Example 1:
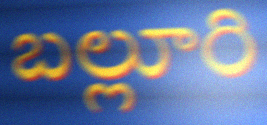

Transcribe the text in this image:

బల్లూరి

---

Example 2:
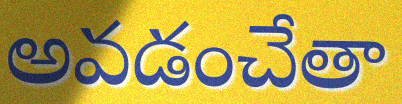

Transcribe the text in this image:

అవడంచేతా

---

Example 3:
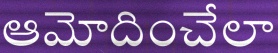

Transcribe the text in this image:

ఆమోదించేలా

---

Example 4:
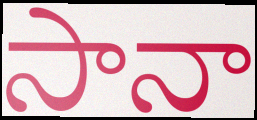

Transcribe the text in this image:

సానా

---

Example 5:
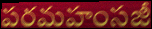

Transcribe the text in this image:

పరమహంసజీ